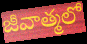
జీవాత్మలో